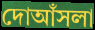
দোআঁসলা